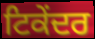
ਟਿਕੇਂਦਰ